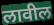
लावील